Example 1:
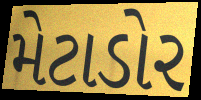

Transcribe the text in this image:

મેટાડોર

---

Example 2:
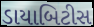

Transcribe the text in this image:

ડાયાબિટીસ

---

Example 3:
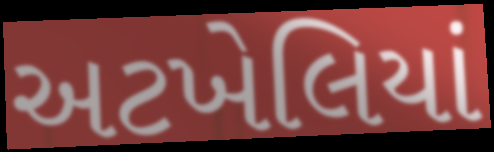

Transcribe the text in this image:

અટખેલિયાં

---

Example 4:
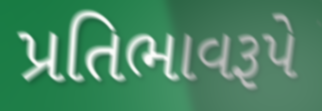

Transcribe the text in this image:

પ્રતિભાવરૂપે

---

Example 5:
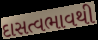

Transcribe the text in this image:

દાસત્વભાવથી